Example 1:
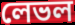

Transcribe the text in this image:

লেভল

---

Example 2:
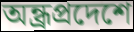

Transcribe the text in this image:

অন্ধ্রপ্রদেশে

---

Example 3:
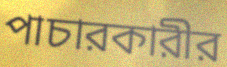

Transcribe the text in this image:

পাচারকারীর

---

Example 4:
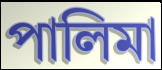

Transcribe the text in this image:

পালিমা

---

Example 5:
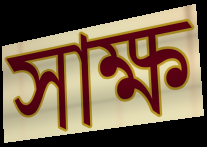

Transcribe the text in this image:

সাক্ষ